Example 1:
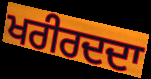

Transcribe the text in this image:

ਖਰੀਰਦਦਾ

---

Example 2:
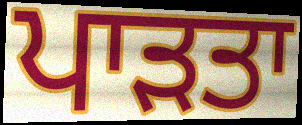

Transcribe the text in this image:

ਪਾੜਤਾ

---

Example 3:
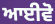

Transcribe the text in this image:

ਆਈਵੋ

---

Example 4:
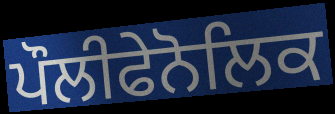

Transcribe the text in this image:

ਪੌਲੀਫੇਨੋਲਿਕ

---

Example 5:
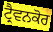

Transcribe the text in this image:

ਟ੍ਰੈਵਨਕੋਰ